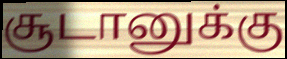
சூடானுக்கு